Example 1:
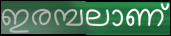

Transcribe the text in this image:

ഇരമ്പലാണ്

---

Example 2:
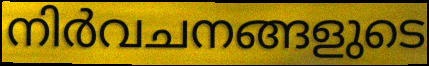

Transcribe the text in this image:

നിർവചനങ്ങളുടെ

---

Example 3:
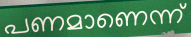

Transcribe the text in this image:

പണമാണെന്ന്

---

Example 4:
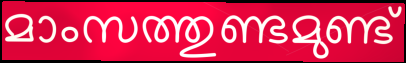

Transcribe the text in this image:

മാംസത്തുണ്ടമുണ്ട്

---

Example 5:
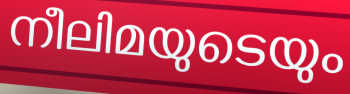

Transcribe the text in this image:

നീലിമയുടെയും